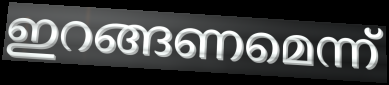
ഇറങ്ങണമെന്ന്